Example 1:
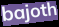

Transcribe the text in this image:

bajoth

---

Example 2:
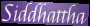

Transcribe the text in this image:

Siddhattha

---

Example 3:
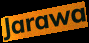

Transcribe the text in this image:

Jarawa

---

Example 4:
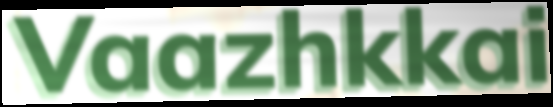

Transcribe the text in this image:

Vaazhkkai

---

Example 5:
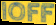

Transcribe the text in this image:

IOFF